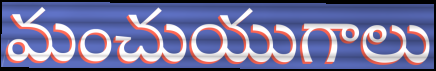
మంచుయుగాలు